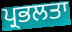
ਪ੍ਰਭਲਤਾ